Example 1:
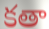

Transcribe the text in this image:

కతా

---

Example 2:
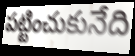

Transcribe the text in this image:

పట్టించుకునేది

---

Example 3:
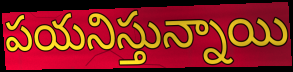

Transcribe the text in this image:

పయనిస్తున్నాయి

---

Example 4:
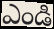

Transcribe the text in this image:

ఎండి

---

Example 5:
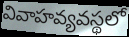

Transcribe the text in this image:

వివాహవ్యవస్థలో